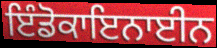
ਇੰਡੋਕਾਇਨਾਈਨ